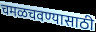
चमळचवण्यासाठी